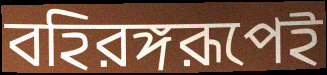
বহিরঙ্গরূপেই